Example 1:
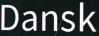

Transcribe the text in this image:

Dansk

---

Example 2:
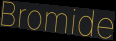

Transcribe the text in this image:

Bromide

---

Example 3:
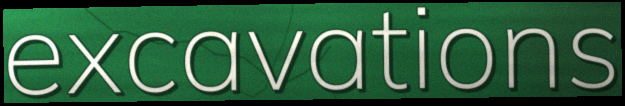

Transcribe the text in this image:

excavations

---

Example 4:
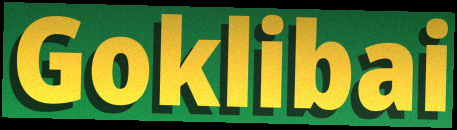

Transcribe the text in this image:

Goklibai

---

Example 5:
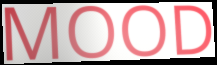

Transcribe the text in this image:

MOOD